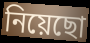
নিয়েছো